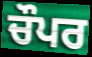
ਚੌਪਰ